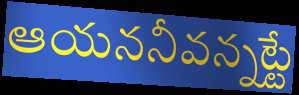
ఆయననీవన్నట్టే